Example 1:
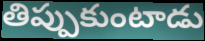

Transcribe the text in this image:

తిప్పుకుంటాడు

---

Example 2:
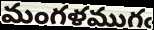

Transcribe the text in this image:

మంగళముగఁ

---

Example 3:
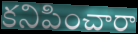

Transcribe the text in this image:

కనిపించారా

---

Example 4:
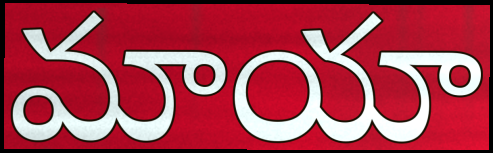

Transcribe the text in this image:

మాయా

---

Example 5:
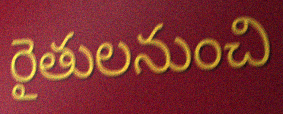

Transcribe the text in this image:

రైతులనుంచి